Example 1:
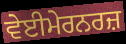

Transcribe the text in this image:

ਵੇਈਮੇਰਨਰਜ਼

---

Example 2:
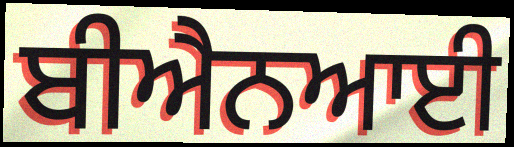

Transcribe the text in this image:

ਬੀਐਨਆਈ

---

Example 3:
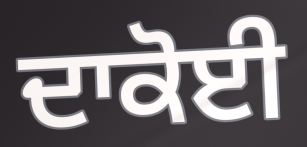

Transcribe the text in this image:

ਦਾਕੋਈ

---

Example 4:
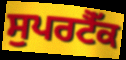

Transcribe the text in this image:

ਸੁਪਰਟੈੱਕ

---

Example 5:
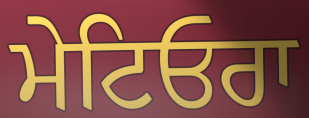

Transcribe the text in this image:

ਮੇਟਿਓਰਾ